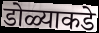
डोळ्याकडे